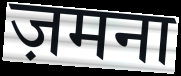
ज़मना